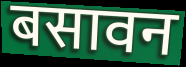
बसावन